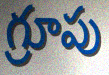
గ్రూపు